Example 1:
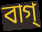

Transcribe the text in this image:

বাগ্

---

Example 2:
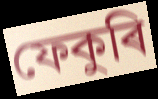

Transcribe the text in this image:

ফেকুৰি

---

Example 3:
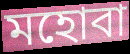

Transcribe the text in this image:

মহোবা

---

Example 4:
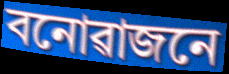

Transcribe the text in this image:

বনোৱাজনে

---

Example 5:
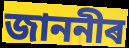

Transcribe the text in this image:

জাননীৰ